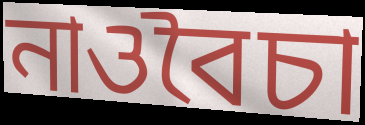
নাওবৈচা